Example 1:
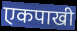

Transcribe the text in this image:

एकपाखी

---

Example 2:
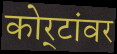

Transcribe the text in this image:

कोर्टांवर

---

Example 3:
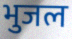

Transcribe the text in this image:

भुजल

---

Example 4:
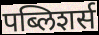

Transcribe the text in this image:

पब्लिशर्स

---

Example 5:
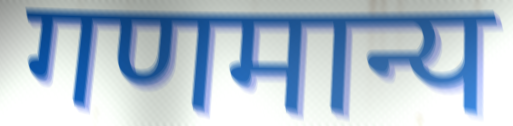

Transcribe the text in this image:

गणमान्य